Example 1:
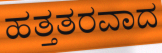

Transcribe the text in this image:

ಹತ್ತತರವಾದ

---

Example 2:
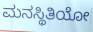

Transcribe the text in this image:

ಮನಸ್ಥಿತಿಯೋ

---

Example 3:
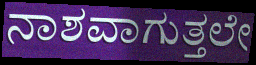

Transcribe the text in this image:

ನಾಶವಾಗುತ್ತಲೇ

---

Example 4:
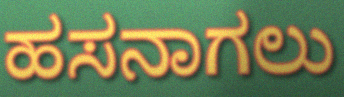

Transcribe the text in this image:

ಹಸನಾಗಲು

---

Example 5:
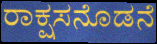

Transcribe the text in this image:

ರಾಕ್ಷಸನೊಡನೆ